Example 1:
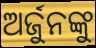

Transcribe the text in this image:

ଅର୍ଜୁନଙ୍କୁ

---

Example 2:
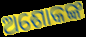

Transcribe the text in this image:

ଅଶୋକଙ୍କ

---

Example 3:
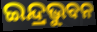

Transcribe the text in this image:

ଇନ୍ଦ୍ରଭୁବନ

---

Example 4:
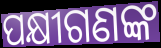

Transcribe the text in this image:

ପକ୍ଷୀଗଣଙ୍କ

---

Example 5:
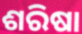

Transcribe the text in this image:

ଶରିଷା